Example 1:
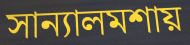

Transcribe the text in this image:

সান্যালমশায়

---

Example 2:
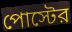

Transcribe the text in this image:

পোস্টের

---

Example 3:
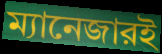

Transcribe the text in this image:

ম্যানেজারই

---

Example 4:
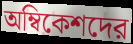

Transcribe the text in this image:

অম্বিকেশদের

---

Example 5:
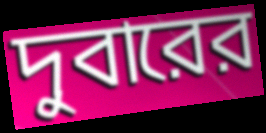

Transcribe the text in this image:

দুবারের